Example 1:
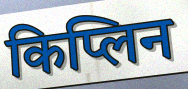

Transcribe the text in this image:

किप्लिन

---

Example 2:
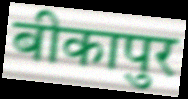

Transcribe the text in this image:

बीकापुर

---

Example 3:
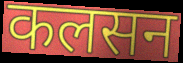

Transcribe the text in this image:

कलसन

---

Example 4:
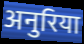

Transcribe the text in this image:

अनुरिया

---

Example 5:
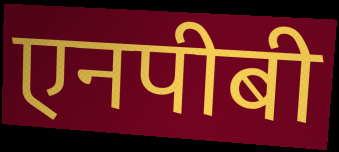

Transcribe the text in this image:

एनपीबी